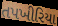
તપખીરિયા